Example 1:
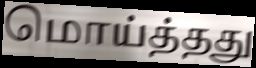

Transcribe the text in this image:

மொய்த்தது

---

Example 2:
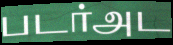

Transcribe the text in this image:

படர்அட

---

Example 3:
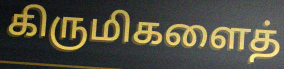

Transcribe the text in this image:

கிருமிகளைத்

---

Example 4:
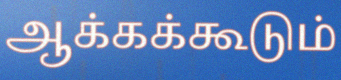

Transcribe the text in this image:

ஆக்கக்கூடும்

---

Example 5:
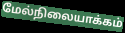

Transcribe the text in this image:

மேல்நிலையாக்கம்